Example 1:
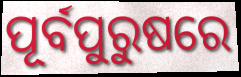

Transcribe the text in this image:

ପୂର୍ବପୁରୁଷରେ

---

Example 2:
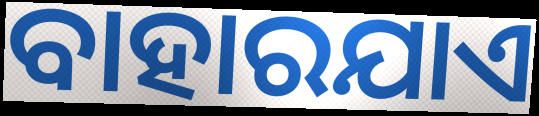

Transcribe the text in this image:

ବାହାରଯାଏ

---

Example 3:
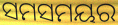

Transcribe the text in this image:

ସମସମୟର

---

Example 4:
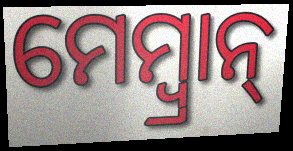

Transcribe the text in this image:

ମେମ୍ବ୍ରାନ୍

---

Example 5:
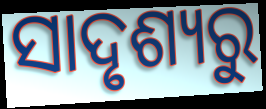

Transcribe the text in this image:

ସାଦୃଶ୍ୟରୁ